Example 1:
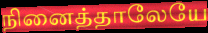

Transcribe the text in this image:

நினைத்தாலேயே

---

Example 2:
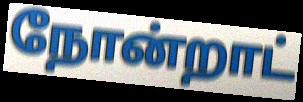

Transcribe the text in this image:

நோன்றாட்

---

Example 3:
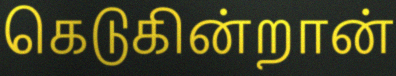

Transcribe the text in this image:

கெடுகின்றான்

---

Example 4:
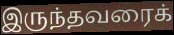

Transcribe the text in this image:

இருந்தவரைக்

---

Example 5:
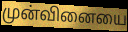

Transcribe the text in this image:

முன்வினையை